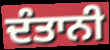
ਦੰਤਾਨੀ